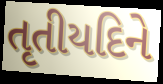
તૃતીયદિને